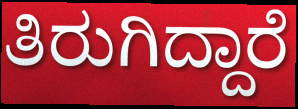
ತಿರುಗಿದ್ದಾರೆ